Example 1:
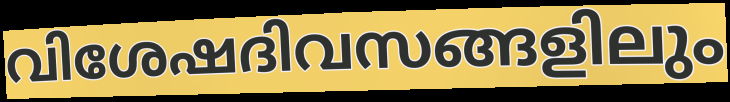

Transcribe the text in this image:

വിശേഷദിവസങ്ങളിലും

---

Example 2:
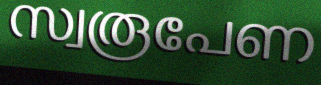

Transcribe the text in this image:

സ്വരൂപേണ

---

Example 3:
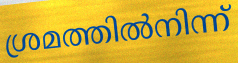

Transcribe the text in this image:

ശ്രമത്തിൽനിന്ന്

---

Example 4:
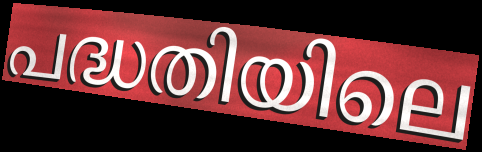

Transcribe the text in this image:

പദ്ധതിയിലെ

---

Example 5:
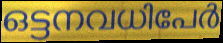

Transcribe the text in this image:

ഒട്ടനവധിപേർ